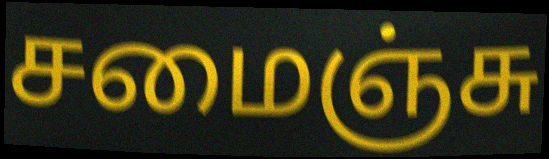
சமைஞ்சு